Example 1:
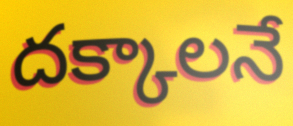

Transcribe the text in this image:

దక్కాలనే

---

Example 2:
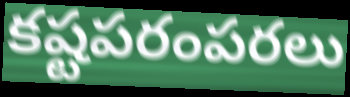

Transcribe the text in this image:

కష్టపరంపరలు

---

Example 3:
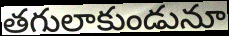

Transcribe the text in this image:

తగులాకుండునూ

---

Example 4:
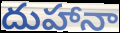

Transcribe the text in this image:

దుహానా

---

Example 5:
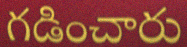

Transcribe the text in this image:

గడించారు